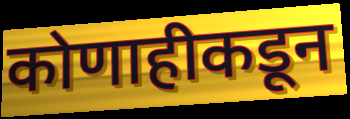
कोणाहीकडून